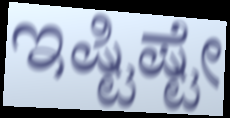
ಇಷ್ಟಿಷ್ಟೇ